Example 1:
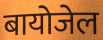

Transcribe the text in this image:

बायोजेल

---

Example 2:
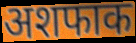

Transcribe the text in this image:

अशफाक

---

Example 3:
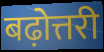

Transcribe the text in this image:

बढ़ोत्तरी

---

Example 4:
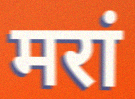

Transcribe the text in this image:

मरां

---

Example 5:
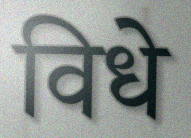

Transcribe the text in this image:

विधे